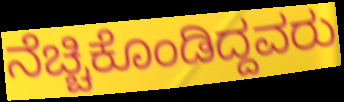
ನೆಚ್ಚಿಕೊಂಡಿದ್ದವರು